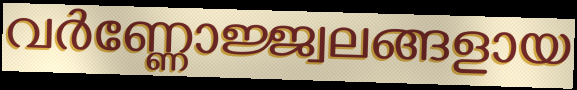
വർണ്ണോജ്ജ്വലങ്ങളായ